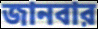
জানবার